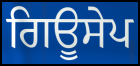
ਗਿਊਸੇਪ